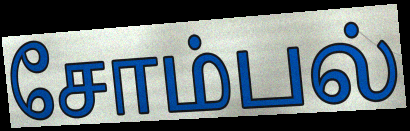
சோம்பல்